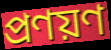
প্রণয়ণ